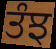
ਤੰਝ